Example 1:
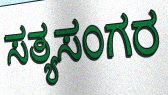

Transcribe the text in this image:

ಸತ್ಯಸಂಗರ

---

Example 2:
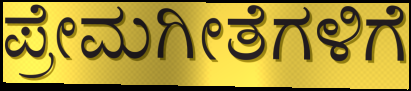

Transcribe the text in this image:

ಪ್ರೇಮಗೀತೆಗಳಿಗೆ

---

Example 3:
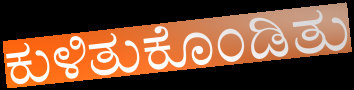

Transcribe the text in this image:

ಕುಳಿತುಕೊಂಡಿತು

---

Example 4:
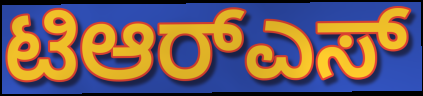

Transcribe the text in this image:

ಟಿಆರ್‌ಎಸ್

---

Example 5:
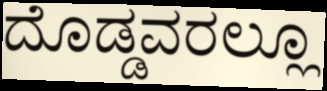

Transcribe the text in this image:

ದೊಡ್ಡವರಲ್ಲೂ